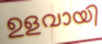
ഉളവായി